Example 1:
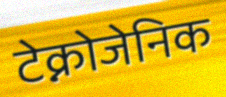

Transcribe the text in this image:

टेक्नोजेनिक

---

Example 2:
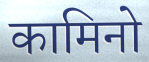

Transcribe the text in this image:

कामिनो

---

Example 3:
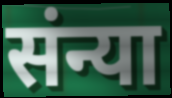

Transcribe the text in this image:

संन्या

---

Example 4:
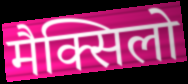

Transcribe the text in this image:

मैक्सिलो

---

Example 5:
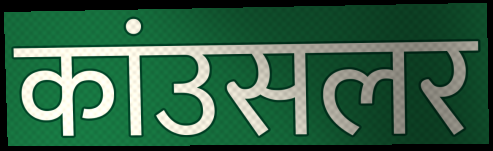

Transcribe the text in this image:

कांउसलर